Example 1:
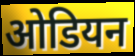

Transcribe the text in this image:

ओडियन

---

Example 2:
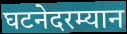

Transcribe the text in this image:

घटनेदरम्यान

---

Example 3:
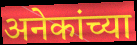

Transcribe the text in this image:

अनेकांच्या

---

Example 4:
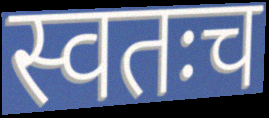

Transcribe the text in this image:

स्वतःच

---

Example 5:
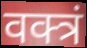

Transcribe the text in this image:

वक्त्रं